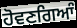
ਹੋਵਣਗਿਆੰ